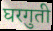
घरगुती